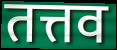
तत्तव